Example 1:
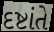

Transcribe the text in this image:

દષ્ટાંતે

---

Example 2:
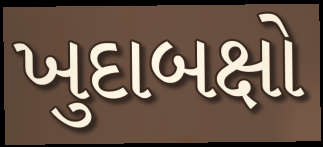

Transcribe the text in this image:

ખુદાબક્ષો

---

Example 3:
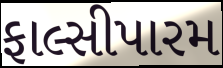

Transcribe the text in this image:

ફાલ્સીપારમ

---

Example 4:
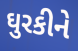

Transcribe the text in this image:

ઘુરકીને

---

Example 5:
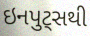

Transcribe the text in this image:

ઇનપુટ્સથી